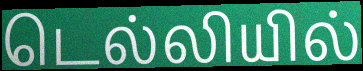
டெல்லியில்